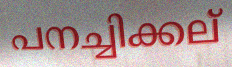
പനച്ചിക്കല്